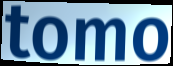
tomo